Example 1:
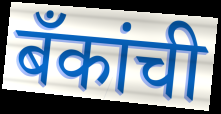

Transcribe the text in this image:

बँकांची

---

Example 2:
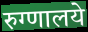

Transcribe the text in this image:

रुग्णालये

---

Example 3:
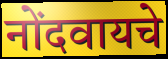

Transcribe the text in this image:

नोंदवायचे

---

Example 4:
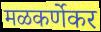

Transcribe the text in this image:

मळकर्णेकर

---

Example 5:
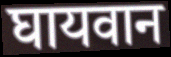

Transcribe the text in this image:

घायवान